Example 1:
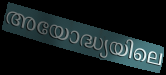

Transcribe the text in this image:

അയോദ്ധ്യയിലെ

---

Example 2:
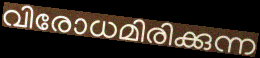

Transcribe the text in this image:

വിരോധമിരിക്കുന്ന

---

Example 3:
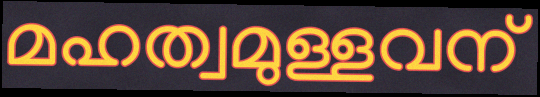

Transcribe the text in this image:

മഹത്വമുള്ളവന്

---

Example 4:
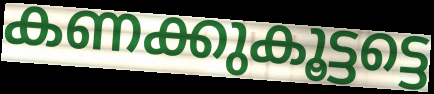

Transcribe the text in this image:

കണക്കുകൂട്ടട്ടെ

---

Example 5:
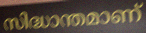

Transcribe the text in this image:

സിദ്ധാന്തമാണ്